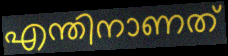
എന്തിനാണത്